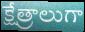
క్షేత్రాలుగా